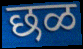
छळ